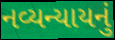
નવ્યન્યાયનું